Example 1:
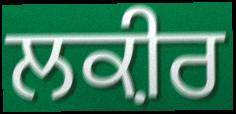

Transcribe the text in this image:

ਲਕ਼ੀਰ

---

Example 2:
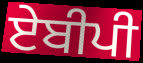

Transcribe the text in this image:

ਏਬੀਪੀ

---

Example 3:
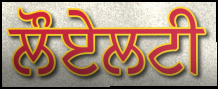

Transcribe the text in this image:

ਲੌਏਲਟੀ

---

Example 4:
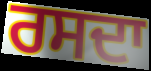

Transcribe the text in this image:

ਰਸਦਾ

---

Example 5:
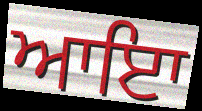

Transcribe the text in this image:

ਆਇਾ